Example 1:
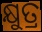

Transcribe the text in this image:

କ୍ଷୁତ୍ର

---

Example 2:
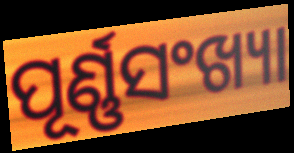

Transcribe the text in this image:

ପୂର୍ଣ୍ଣସଂଖ୍ୟା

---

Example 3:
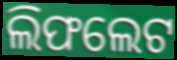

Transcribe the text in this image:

ଲିଫଲେଟ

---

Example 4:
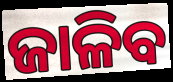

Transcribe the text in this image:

ଜାଳିବ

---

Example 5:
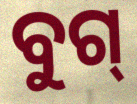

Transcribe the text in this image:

ବୁଗ୍